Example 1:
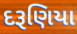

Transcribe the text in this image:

દરૂણિયા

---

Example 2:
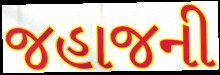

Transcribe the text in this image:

જહાજની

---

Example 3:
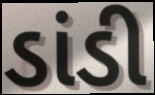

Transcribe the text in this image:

ડાંડી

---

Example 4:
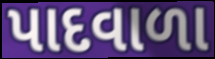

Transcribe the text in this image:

પાદવાળા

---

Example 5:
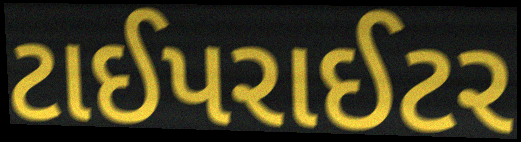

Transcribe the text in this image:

ટાઈપરાઈટર